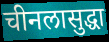
चीनलासुद्धा